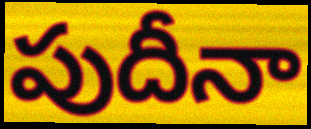
పుదీనా